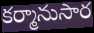
కర్మానుసార